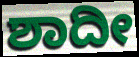
ಶಾದೀ